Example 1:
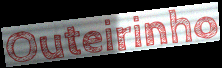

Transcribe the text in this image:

Outeirinho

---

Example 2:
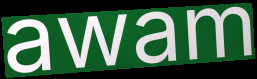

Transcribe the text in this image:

awam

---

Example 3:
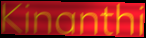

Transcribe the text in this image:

Kinanthi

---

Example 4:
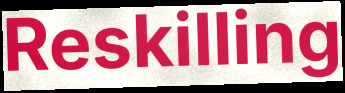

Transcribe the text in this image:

Reskilling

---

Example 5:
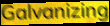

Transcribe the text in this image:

Galvanizing